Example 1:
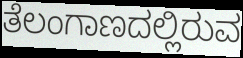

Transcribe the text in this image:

ತೆಲಂಗಾಣದಲ್ಲಿರುವ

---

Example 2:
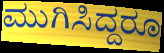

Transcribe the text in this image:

ಮುಗಿಸಿದ್ದರೂ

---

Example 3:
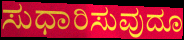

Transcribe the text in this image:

ಸುಧಾರಿಸುವುದೂ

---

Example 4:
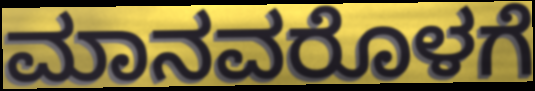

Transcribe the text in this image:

ಮಾನವರೊಳಗೆ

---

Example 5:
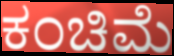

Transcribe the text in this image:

ಕಂಚಿಮೆ